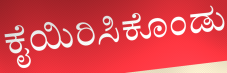
ಕೈಯಿರಿಸಿಕೊಂಡು